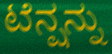
ಟೆನ್ಷನ್ನು